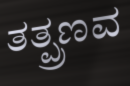
ತತ್ಪ್ರಣವ